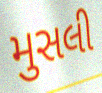
મુસલી